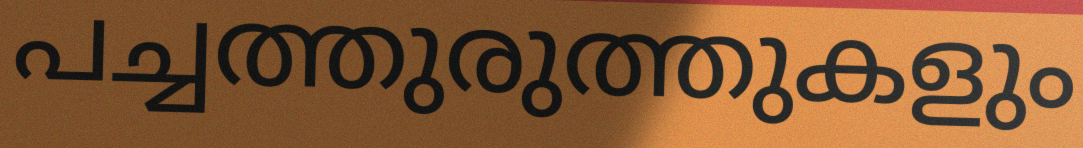
പച്ചത്തുരുത്തുകളും